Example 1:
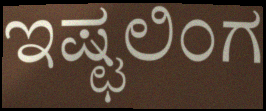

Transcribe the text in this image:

ಇಷ್ಟಲಿಂಗ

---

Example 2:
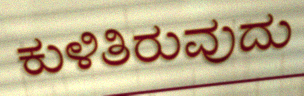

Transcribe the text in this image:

ಕುಳಿತಿರುವುದು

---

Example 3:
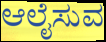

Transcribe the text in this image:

ಆಲೈಸುವ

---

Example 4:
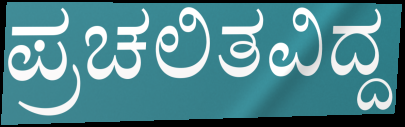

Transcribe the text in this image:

ಪ್ರಚಲಿತವಿದ್ದ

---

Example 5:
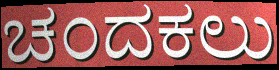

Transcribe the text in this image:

ಚಂದಕಲು